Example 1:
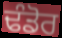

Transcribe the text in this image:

ਢੰਡੋਰ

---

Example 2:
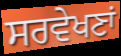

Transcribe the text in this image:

ਸਰਵੇਖਣਾਂ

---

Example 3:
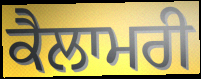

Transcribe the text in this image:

ਕੈਲਾਮਰੀ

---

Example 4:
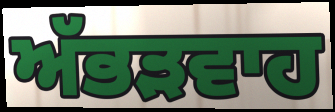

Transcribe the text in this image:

ਅੱਭੜਵਾਹ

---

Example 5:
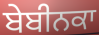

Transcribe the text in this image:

ਬੇਬੀਨਕਾ